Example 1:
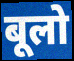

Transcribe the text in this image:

बूलो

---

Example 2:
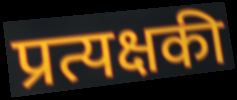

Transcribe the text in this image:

प्रत्यक्षकी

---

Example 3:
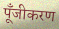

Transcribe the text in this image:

पूँजीकरण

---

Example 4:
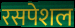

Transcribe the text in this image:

रसपेशल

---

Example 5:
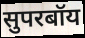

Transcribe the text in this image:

सुपरबॉय